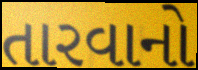
તારવાનો